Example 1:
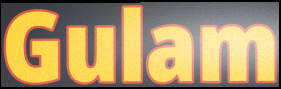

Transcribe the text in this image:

Gulam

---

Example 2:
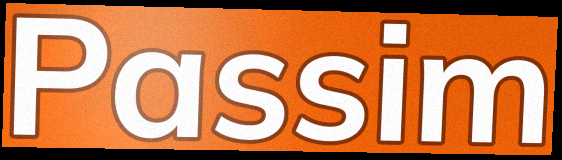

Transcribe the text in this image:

Passim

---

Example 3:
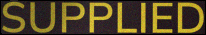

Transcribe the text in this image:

SUPPLIED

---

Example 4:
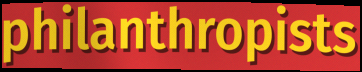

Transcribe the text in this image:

philanthropists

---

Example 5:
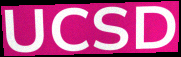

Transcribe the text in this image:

UCSD